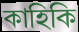
কাহিকি